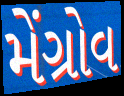
મેંગ્રોવ